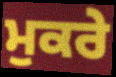
ਮੁਕਰੇ